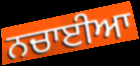
ਨਚਾਈਆ